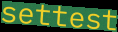
settest